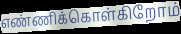
எண்ணிக்கொள்கிறோம்